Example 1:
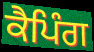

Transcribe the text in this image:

ਕੈਪਿੰਗ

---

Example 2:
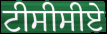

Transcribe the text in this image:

ਟੀਸੀਸੀਏ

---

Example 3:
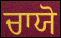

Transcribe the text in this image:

ਚਾਯੋ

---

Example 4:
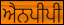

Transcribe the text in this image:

ਐਨਪੀਪੀ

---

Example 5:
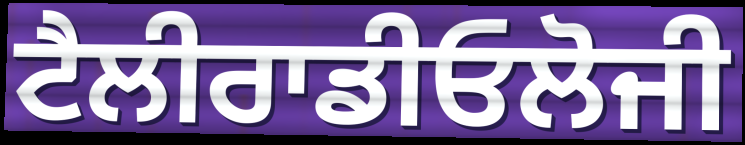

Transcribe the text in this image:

ਟੈਲੀਰਾਡੀਓਲੋਜੀ